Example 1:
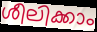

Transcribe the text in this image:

ശീലിക്കാം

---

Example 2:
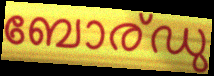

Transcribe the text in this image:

ബോര്ഡു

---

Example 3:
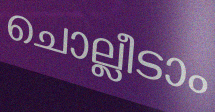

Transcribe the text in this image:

ചൊല്ലീടാം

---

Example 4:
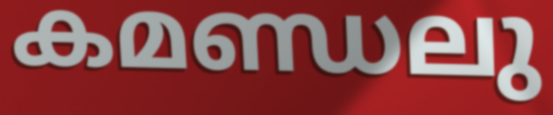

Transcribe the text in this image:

കമണ്ഡലു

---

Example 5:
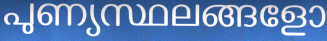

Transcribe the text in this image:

പുണ്യസ്ഥലങ്ങളോ